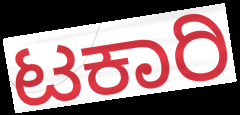
ಟಕಾರಿ